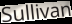
Sullivan